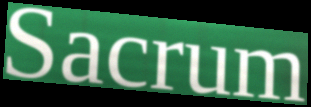
Sacrum